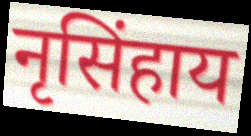
नृसिंहाय